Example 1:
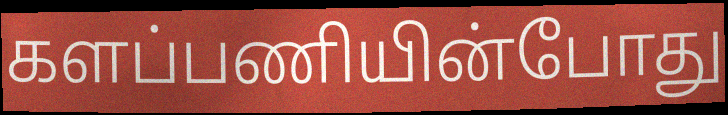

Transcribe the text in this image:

களப்பணியின்போது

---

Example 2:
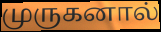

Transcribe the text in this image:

முருகனால்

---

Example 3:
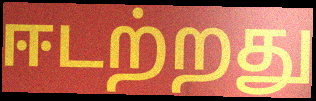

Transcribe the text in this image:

ஈடற்றது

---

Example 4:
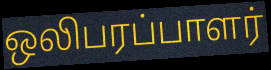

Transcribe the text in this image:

ஒலிபரப்பாளர்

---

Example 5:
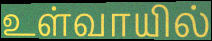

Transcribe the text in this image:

உள்வாயில்